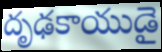
దృఢకాయుడై